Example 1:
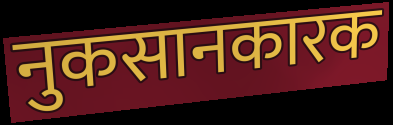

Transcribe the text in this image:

नुकसानकारक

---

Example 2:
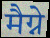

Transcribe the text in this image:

मैग्ने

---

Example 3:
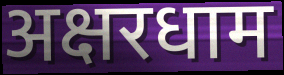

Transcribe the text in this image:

अक्षरधाम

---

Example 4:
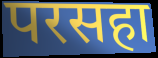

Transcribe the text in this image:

परसहा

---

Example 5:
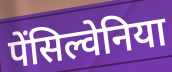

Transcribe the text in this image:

पेंसिल्वेनिया